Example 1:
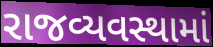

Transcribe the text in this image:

રાજવ્યવસ્થામાં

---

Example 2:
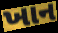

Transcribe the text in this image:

ખાન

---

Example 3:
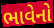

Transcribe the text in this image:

ભાવેનો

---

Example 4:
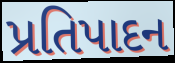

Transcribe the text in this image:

પ્રતિપાદન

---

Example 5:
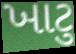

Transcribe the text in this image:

ખાટુ